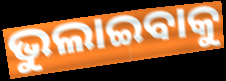
ଭୁଲାଇବାକୁ